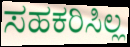
ಸಹಕರಿಸಿಲ್ಲ